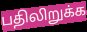
பதிலிறுக்க